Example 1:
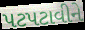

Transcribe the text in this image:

પટપટાવીને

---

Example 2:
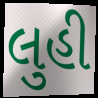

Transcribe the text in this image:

લુહી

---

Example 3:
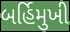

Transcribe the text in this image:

બર્હિમુખી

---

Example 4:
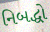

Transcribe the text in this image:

નિબદ્ધો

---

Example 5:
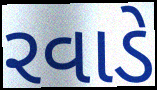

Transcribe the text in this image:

રવાડે